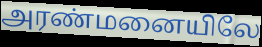
அரண்மனையிலே